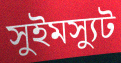
সুইমস্যুট